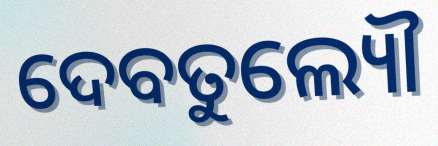
ଦେବତୁଲ୍ୟୌ